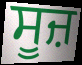
ਸੂਜ਼